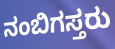
ನಂಬಿಗಸ್ತರು